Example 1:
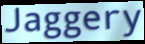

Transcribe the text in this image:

Jaggery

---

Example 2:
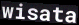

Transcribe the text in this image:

wisata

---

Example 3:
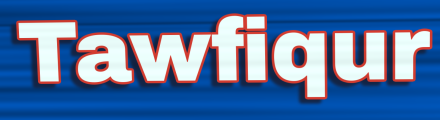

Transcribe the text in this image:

Tawfiqur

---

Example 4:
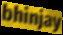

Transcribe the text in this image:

bhinjay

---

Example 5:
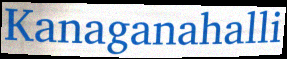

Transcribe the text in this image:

Kanaganahalli